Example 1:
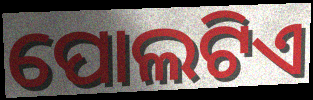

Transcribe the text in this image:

ପୋଲଟିଏ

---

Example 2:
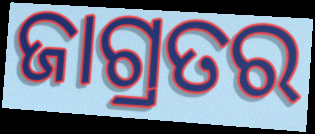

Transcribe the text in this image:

ଜାଗ୍ରତର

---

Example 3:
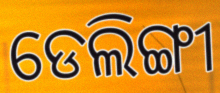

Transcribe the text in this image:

ଡେଲିଙ୍ଗୀ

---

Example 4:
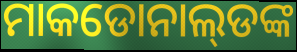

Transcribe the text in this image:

ମାକଡୋନାଲ୍‍ଡଙ୍କ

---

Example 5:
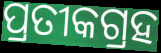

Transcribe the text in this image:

ପ୍ରତୀକଗ୍ରହ